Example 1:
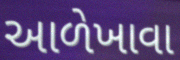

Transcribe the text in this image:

આળેખાવા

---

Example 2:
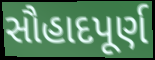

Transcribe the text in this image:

સૌહાદપૂર્ણ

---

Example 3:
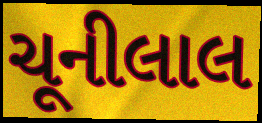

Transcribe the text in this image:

ચૂનીલાલ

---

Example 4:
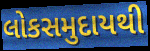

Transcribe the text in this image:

લોકસમુદાયથી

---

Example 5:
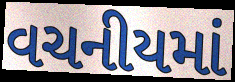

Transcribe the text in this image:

વચનીયમાં